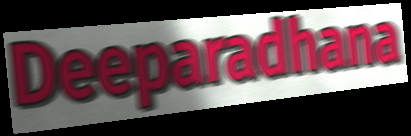
Deeparadhana